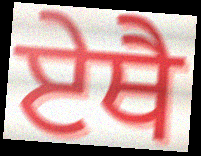
ਏਥੈ